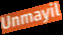
Unmayil